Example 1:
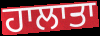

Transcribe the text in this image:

ਹਾਲਾਤਾ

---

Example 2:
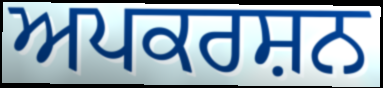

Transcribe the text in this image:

ਅਪਕਰਸ਼ਨ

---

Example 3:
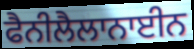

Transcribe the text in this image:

ਫੈਨੀਲੈਲਾਨਾਈਨ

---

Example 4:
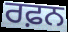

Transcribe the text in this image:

ਰਫ਼ਨ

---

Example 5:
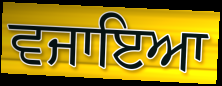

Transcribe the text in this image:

ਵਜਾਇਆ